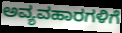
ಅವ್ಯವಹಾರಗಳಿಗೆ